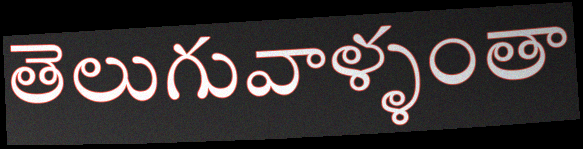
తెలుగువాళ్ళంతా